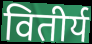
वितीर्य